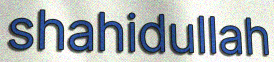
shahidullah